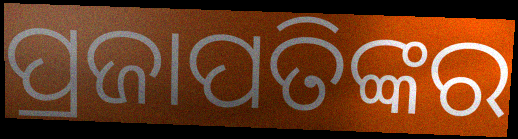
ପ୍ରଜାପତିଙ୍କର